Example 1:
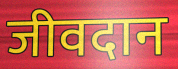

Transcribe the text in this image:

जीवदान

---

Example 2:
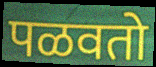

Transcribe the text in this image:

पळवतो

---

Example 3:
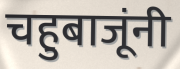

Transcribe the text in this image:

चहुबाजूंनी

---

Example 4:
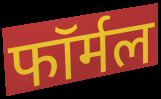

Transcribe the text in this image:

फॉर्मल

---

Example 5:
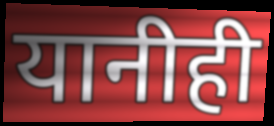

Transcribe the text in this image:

यानीही